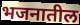
भजनातील